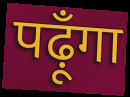
पढ़ूँगा